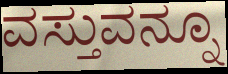
ವಸ್ತುವನ್ನೂ